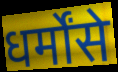
धर्मोंसे